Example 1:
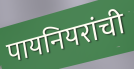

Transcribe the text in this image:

पायनियरांची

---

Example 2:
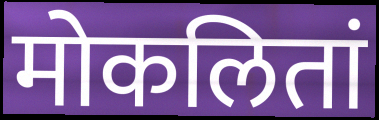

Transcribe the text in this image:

मोकलितां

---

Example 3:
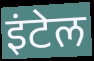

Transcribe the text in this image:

इंटेल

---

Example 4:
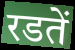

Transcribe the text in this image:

रडतें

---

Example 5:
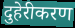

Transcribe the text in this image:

दुहेरीकरण